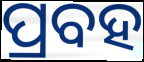
ପ୍ରବହ